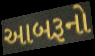
આબરૂનો